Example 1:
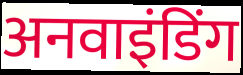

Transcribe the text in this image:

अनवाइंडिंग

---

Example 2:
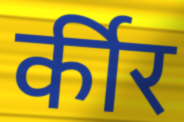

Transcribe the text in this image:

र्कीर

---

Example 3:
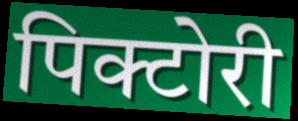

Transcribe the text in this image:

पिक्टोरी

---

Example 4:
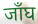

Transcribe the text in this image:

जाँघ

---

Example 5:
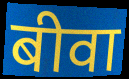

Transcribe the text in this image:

बीवा